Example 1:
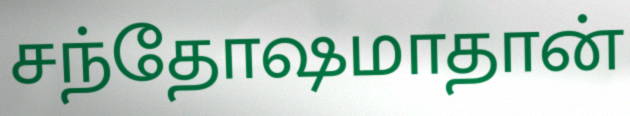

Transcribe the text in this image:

சந்தோஷமாதான்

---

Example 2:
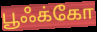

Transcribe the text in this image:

பூஃக்கோ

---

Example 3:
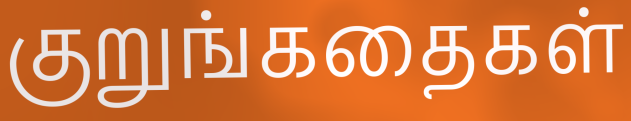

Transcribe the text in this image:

குறுங்கதைகள்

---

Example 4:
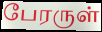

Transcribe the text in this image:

பேரருள்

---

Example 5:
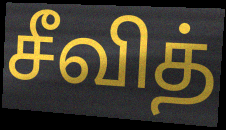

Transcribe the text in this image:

சீவித்